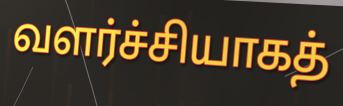
வளர்ச்சியாகத்